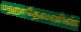
மஹாதேவனின்